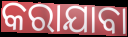
କରାଯାବା